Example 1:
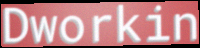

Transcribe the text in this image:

Dworkin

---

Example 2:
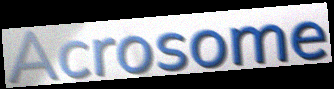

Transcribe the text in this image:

Acrosome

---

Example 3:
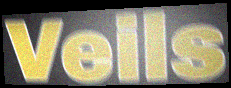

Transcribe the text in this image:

Veils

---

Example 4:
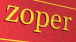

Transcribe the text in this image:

zoper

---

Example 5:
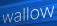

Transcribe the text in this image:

wallow